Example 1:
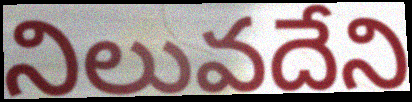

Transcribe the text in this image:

నిలువదేని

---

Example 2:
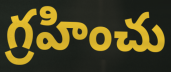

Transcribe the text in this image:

గ్రహించు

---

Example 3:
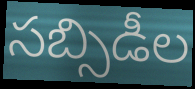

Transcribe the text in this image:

సబ్సిడీల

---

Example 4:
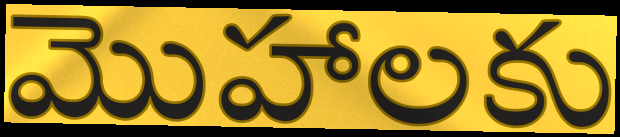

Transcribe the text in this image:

మొహాలకు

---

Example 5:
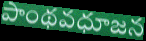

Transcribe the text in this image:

పాంథవధూజన